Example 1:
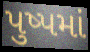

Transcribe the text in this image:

પુષ્પમાં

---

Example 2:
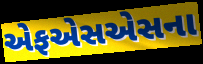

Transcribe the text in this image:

એફએસએસના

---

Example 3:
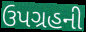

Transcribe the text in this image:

ઉપગ્રહની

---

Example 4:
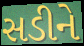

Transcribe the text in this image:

સડીને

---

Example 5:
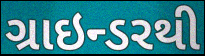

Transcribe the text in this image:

ગ્રાઇન્ડરથી